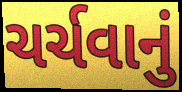
ચર્ચવાનું